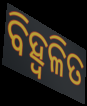
ବିହ୍ୱଳିତ